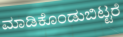
ಮಾಡಿಕೊಂಡುಬಿಟ್ಟರೆ